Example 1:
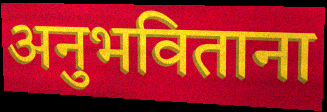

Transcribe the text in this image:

अनुभविताना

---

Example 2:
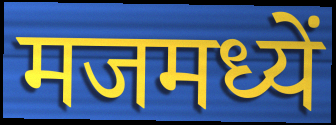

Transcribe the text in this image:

मजमध्यें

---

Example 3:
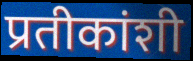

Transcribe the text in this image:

प्रतीकांशी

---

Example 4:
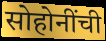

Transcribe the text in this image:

सोहोनींची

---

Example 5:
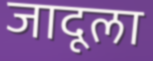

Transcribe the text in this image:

जादूला